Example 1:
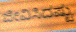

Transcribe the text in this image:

ಜೀವಿಸಿದಷ್ಟು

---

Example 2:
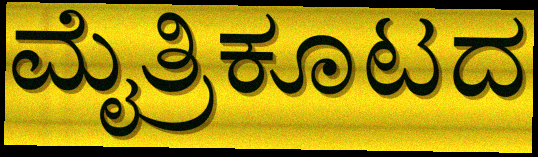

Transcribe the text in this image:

ಮೈತ್ರಿಕೂಟದ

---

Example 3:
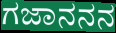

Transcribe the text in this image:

ಗಜಾನನನ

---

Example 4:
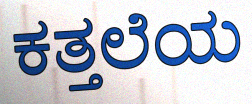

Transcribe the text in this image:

ಕತ್ತಲೆಯ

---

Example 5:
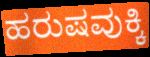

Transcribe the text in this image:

ಹರುಷವುಕ್ಕಿ